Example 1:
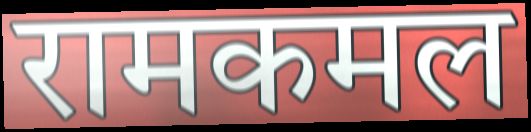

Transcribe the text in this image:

रामकमल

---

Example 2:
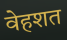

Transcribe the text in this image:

वेहशत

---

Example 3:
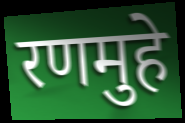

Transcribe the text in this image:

रणमुहे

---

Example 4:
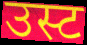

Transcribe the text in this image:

उस्ट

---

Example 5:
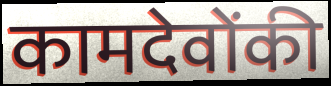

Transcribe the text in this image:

कामदेवोंकी